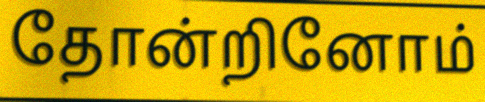
தோன்றினோம்